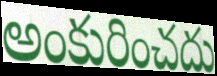
అంకురించదు